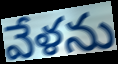
వేళను